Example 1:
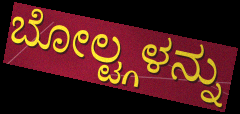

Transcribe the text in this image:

ಬೋಲ್ಟ್ಗಳನ್ನು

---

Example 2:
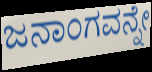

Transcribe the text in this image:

ಜನಾಂಗವನ್ನೇ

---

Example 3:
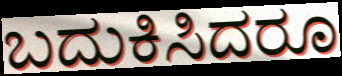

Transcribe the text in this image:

ಬದುಕಿಸಿದರೂ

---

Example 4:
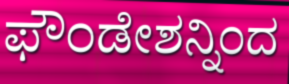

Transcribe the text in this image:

ಫೌಂಡೇಶನ್ನಿಂದ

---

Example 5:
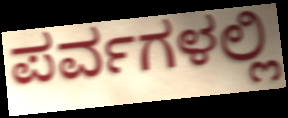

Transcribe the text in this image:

ಪರ್ವಗಳಲ್ಲಿ